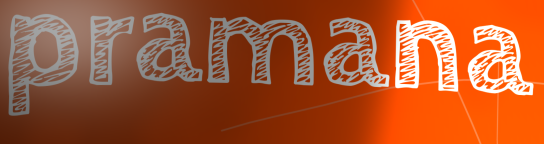
pramana